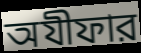
অযীফার